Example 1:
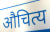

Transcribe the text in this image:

औचित्य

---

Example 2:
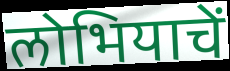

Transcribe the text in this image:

लोभियाचें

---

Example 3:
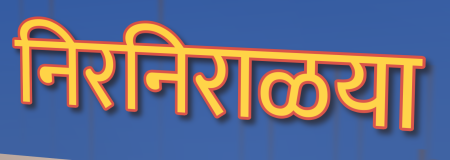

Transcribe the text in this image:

निरनिराळया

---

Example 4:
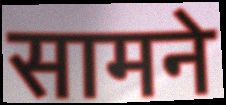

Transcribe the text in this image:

सामने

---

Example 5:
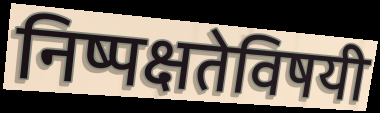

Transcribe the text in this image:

निष्पक्षतेविषयी